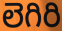
లెగిరి